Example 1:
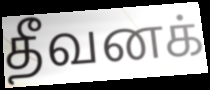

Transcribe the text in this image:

தீவனக்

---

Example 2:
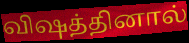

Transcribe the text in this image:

விஷத்தினால்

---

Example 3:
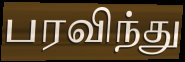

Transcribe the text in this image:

பரவிந்து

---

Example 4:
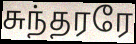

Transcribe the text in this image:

சுந்தரரே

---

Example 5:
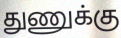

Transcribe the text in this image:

துணுக்கு